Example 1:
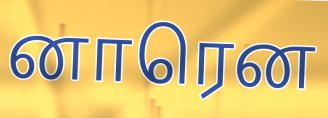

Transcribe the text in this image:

னாரென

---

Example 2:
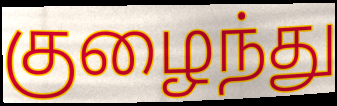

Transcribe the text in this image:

குழைந்து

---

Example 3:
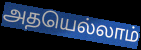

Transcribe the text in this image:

அதயெல்லாம்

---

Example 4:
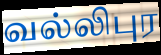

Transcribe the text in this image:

வல்லிபுர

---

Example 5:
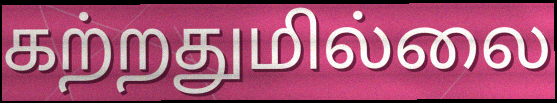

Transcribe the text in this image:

கற்றதுமில்லை